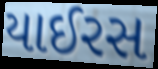
યાઈરસ